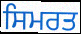
ਸਿਮਰਤ